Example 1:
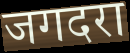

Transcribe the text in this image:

जगदरा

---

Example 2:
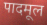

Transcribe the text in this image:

पादमूल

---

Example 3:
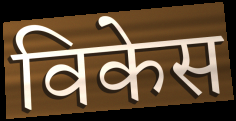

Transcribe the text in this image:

विकेस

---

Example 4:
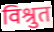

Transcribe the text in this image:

विश्रुत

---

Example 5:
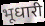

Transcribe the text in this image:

भूधारी